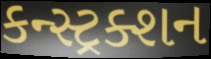
કન્સ્ટ્રક્શન